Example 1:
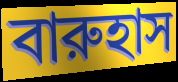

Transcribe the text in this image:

বারুহাস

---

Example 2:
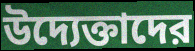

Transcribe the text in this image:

উদ্যেক্তাদের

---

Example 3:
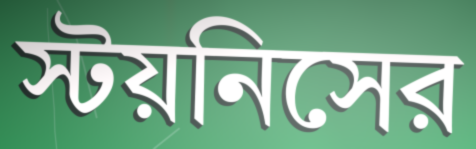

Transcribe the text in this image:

স্টয়নিসের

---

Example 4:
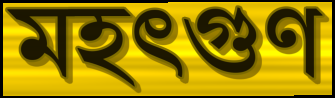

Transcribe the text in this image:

মহৎগুণ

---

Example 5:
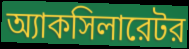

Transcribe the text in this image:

অ্যাকসিলারেটর